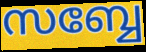
സബ്ബേ